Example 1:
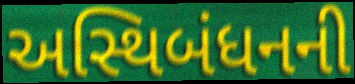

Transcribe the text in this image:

અસ્થિબંધનની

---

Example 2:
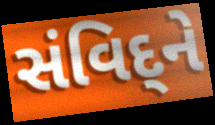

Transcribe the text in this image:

સંવિદ્‌ને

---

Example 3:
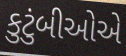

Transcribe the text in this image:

કુટુંબીઓએ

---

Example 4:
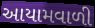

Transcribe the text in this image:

આયામવાળી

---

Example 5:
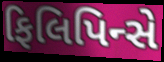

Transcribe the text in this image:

ફિલિપિન્સે